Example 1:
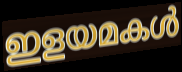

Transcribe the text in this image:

ഇളയമകൾ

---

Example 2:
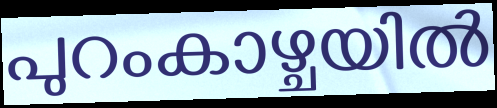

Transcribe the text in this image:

പുറംകാഴ്ചയിൽ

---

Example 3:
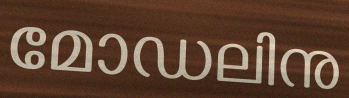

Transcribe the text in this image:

മോഡലിനു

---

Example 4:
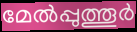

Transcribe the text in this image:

മേൽപ്പുത്തൂർ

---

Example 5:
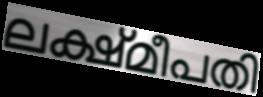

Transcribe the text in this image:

ലക്ഷ്മീപതി